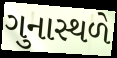
ગુનાસ્થળે